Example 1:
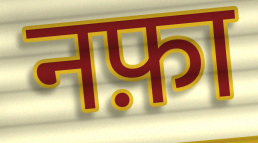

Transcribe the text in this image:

नफ़ा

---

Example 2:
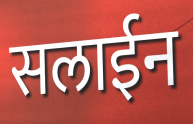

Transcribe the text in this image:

सलाईन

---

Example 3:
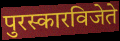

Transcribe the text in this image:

पुरस्कारविजेते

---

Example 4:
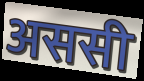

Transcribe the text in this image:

अससी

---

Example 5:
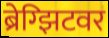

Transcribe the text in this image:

ब्रेग्झिटवर